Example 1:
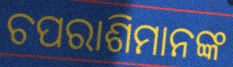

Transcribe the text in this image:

ଚପରାଶିମାନଙ୍କ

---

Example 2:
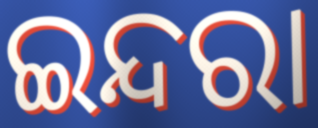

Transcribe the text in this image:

ଇନ୍ଦରା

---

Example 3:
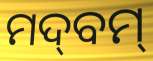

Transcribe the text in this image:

ମଦ୍‌ବମ୍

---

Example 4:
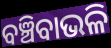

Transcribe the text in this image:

ବଞ୍ଚିବାଭଳି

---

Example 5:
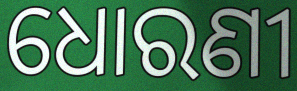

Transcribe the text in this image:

ଧୋରଣୀ